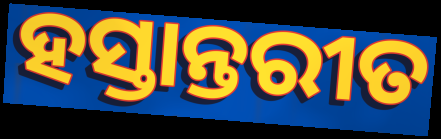
ହସ୍ତାନ୍ତରୀତ